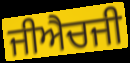
ਜੀਐਚਜੀ